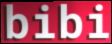
bibi